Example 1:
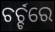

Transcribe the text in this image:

ଚର୍ଚ୍ଚରେ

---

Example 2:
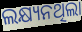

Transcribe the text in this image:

ଲକ୍ଷ୍ୟନଥିଲା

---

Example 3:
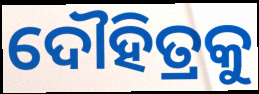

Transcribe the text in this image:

ଦୌହିତ୍ରକୁ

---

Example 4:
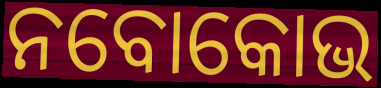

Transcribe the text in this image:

ନବୋକୋଭ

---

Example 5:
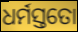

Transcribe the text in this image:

ଧର୍ମସ୍ତତୋ